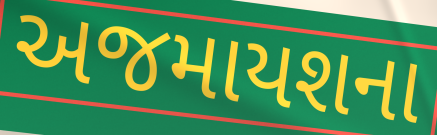
અજમાયશના